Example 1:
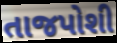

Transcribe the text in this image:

તાજપોશી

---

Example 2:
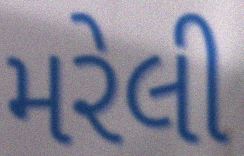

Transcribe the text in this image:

મરેલી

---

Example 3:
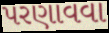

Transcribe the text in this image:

પરણાવવા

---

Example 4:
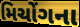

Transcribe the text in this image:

મિચોંગના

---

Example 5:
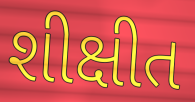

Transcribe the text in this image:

શીક્ષીત